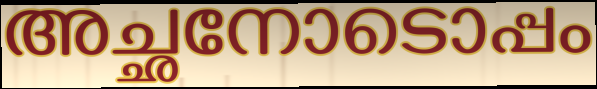
അച്ഛനോടൊപ്പം